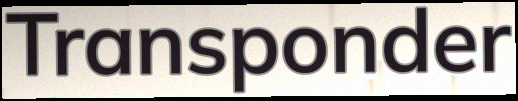
Transponder